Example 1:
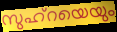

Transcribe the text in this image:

സുഹ്റയെയും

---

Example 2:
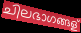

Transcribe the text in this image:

ചിലഭാഗങ്ങള്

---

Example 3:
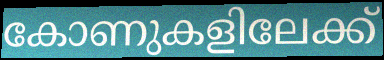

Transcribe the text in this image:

കോണുകളിലേക്ക്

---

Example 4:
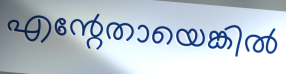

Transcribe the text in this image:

എന്റേതായെങ്കിൽ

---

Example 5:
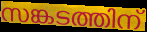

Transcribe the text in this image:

സങ്കടത്തിന്